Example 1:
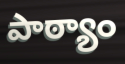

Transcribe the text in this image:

పాఠ్యాం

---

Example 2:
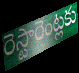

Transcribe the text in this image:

రెస్టారెంట్లకు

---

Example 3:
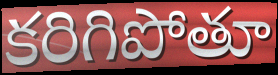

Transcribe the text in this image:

కరిగిపోతూ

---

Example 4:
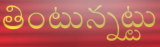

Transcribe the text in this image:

తింటున్నట్టు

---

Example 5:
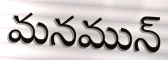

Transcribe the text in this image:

మనమున్